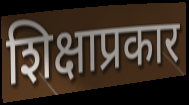
शिक्षाप्रकार